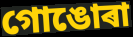
গোঙোৰা